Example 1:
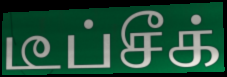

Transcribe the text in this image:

டீப்சீக்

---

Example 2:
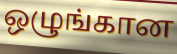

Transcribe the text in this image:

ஒழுங்கான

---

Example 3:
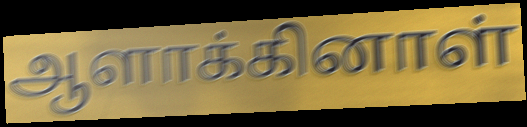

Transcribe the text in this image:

ஆளாக்கினாள்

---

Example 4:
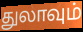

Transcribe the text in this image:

துலாவும்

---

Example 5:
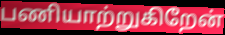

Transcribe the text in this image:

பணியாற்றுகிறேன்